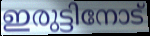
ഇരുട്ടിനോട്